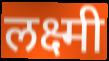
लक्ष्मी